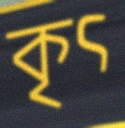
কৃৎ